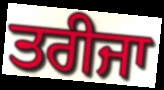
ਤਰੀਜਾ